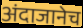
अंदाजानेच